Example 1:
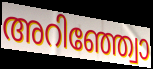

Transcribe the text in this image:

അറിഞ്ഞ്വോ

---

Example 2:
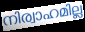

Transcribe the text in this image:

നിര്വാഹമില്ല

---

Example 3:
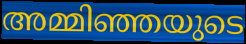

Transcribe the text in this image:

അമ്മിഞ്ഞയുടെ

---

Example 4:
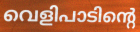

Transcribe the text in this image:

വെളിപാടിന്റെ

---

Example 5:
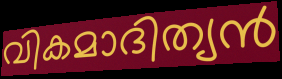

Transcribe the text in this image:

വികമാദിത്യൻ